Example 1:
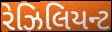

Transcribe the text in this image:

રેઝિલિયન્ટ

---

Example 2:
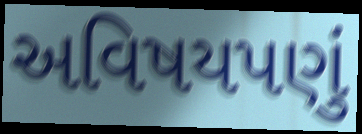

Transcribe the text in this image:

અવિષયપણું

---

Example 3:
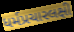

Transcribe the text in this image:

ધર્મપ્રચારલક્ષી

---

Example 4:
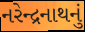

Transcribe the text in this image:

નરેન્દ્રનાથનું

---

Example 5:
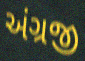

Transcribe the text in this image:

અંગ્રજી